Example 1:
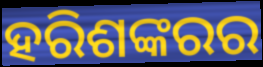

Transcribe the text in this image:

ହରିଶଙ୍କରର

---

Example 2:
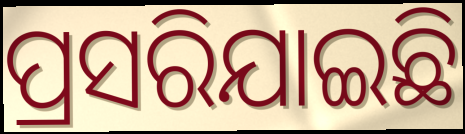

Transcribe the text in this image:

ପ୍ରସରିଯାଇଛି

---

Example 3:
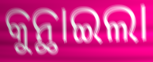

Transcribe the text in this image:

କୁନ୍ଥାଇଲା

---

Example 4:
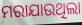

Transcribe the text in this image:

ମରାଯାଉଥିଲା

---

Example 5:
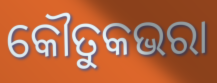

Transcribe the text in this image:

କୌତୁକଭରା